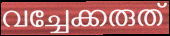
വച്ചേക്കരുത്